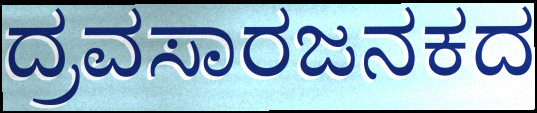
ದ್ರವಸಾರಜನಕದ